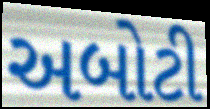
અબોટી